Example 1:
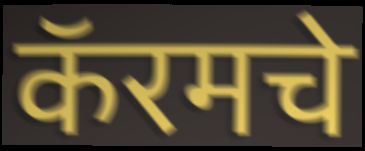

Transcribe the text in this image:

कॅरमचे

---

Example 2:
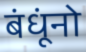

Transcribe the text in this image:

बंधूंनो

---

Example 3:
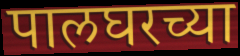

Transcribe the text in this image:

पालघरच्या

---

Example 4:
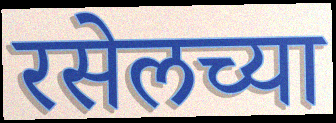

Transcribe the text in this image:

रसेलच्या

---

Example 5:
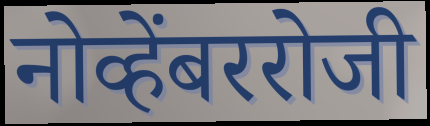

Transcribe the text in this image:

नोव्हेंबररोजी